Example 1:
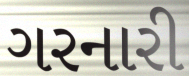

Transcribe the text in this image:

ગરનારી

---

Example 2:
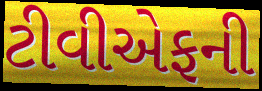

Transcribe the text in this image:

ટીવીએફની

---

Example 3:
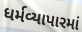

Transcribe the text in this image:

ધર્મવ્યાપારમાં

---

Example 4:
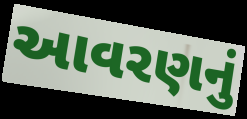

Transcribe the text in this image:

આવરણનું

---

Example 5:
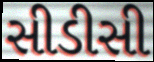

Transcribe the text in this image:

સીડીસી